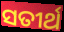
ସତୀର୍ଥ